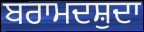
ਬਰਾਮਦਸ਼ੁਦਾ